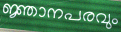
ജ്ഞാനപരവും